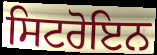
ਸਿਟਰੋਇਨ